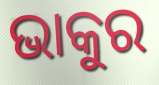
ଭାକୁର